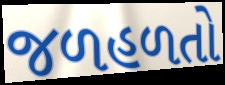
જળહળતો